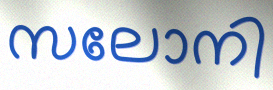
സലോനി